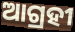
ଆଗ୍ରହୀ